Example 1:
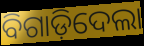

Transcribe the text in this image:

ବିଗାଡ଼ିଦେଲା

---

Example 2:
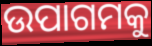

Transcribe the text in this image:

ଉପାଗମକୁ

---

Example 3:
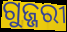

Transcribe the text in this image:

ଗୁଜ୍ଜରୀ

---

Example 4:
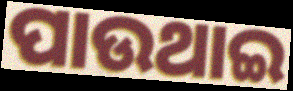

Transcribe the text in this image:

ପାଉଥାଇ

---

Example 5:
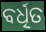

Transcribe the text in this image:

ବର୍ଧିତ